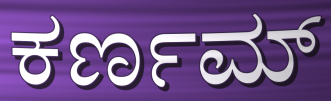
ಕರ್ಣಮ್